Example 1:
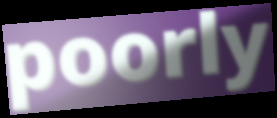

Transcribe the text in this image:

poorly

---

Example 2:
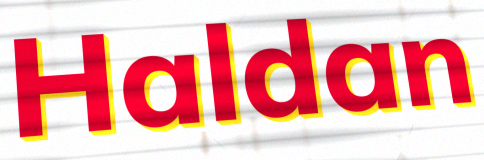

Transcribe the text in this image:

Haldan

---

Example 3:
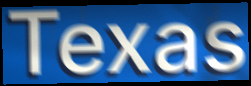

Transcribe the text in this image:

Texas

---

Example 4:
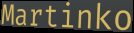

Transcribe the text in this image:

Martinko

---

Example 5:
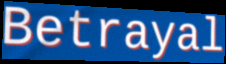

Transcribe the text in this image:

Betrayal